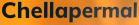
Chellapermal